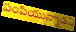
పంపియున్నాడని